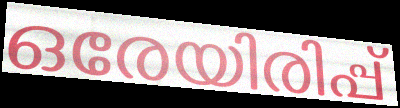
ഒരേയിരിപ്പ്